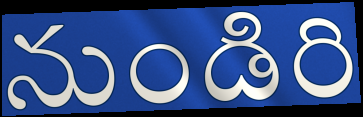
నుండిరి